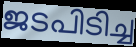
ജടപിടിച്ച